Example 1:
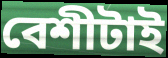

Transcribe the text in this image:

বেশীটাই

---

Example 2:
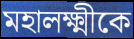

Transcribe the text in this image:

মহালক্ষ্মীকে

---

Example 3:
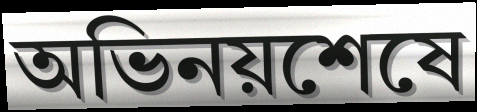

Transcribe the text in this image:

অভিনয়শেষে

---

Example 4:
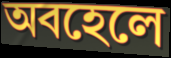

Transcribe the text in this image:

অবহেলে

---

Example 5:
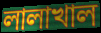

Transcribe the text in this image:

লালাখাল